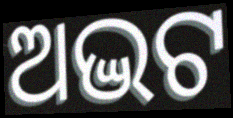
ଅଦ୍ଭଟ